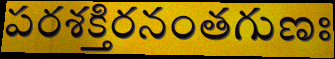
పరశక్తిరనంతగుణః